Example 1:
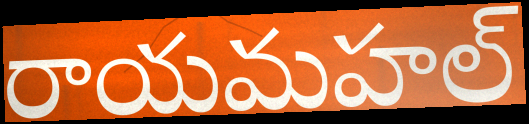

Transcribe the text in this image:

రాయమహల్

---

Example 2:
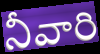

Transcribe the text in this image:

నీవారి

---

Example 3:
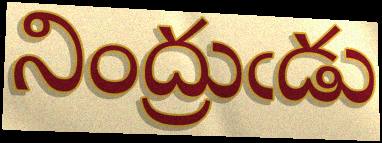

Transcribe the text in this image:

నింద్రుఁడు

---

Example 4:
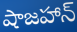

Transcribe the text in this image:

షాజహాన్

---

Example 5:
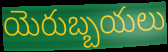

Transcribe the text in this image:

యెరుబ్బయలు